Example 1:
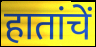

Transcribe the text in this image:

हातांचें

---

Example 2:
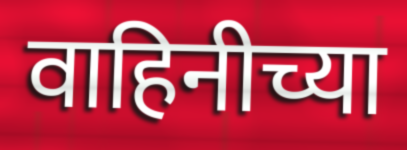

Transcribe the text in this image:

वाहिनीच्या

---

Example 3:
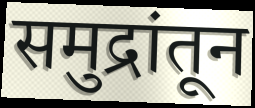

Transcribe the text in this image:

समुद्रांतून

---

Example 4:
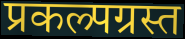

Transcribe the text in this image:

प्रकल्पग्रस्त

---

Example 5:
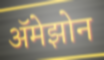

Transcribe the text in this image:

ॲमेझोन